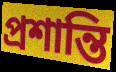
প্রশান্তি